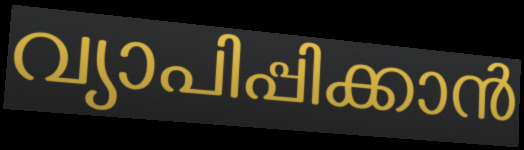
വ്യാപിപ്പിക്കാൻ